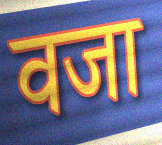
वजा